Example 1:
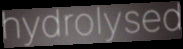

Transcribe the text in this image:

hydrolysed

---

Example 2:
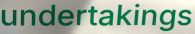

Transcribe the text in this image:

undertakings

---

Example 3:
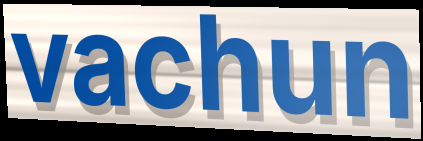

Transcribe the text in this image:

vachun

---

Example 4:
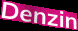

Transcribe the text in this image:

Denzin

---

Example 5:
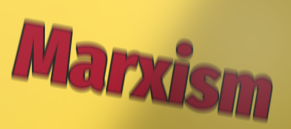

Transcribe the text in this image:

Marxism